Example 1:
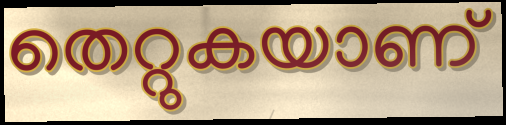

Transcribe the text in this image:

തെറ്റുകയാണ്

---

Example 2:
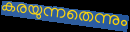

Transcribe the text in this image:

കരയുന്നതെന്നും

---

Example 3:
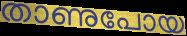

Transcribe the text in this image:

താണുപോയ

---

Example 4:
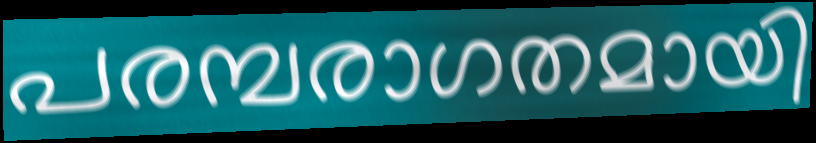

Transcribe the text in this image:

പരമ്പരാഗതമായി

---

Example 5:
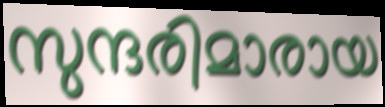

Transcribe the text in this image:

സുന്ദരിമാരായ